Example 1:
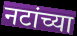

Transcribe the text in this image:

नटांच्या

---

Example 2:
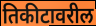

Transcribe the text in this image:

तिकीटावरील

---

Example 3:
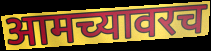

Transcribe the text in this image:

आमच्यावरच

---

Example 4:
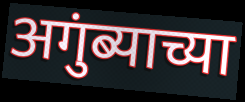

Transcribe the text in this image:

अगुंब्याच्या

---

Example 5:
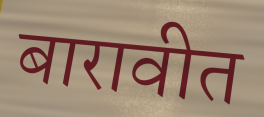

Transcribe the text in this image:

बारावीत